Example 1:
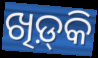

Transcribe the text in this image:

ଖିଡ଼୍‌କି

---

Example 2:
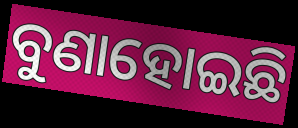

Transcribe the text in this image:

ବୁଣାହୋଇଛି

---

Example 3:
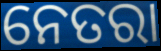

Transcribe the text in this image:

ନେତରା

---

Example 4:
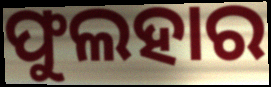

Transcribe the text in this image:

ଫୁଲହାର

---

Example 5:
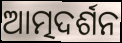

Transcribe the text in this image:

ଆତ୍ମଦର୍ଶନ